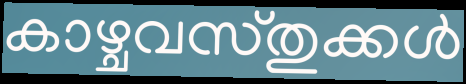
കാഴ്ചവസ്തുക്കൾ